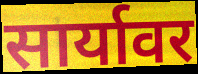
सार्यावर